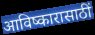
आविष्कारासाठीं